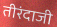
तीरंदाजी